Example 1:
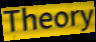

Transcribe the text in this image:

Theory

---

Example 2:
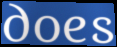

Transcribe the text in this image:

does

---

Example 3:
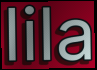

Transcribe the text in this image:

lila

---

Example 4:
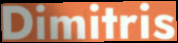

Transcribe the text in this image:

Dimitris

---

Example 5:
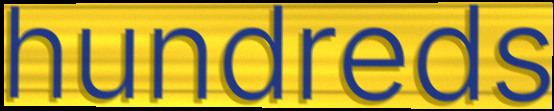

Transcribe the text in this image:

hundreds